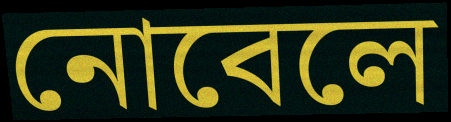
নোবেলে